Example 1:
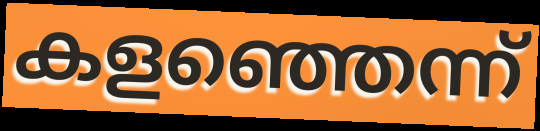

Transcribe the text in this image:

കളഞ്ഞെന്ന്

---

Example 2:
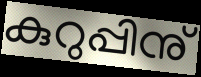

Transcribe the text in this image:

കുറുപ്പിനു്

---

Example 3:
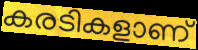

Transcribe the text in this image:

കരടികളാണ്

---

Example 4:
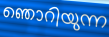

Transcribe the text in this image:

ഞൊറിയുന്ന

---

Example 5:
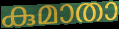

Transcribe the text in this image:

കുമാതാ